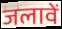
जलावें